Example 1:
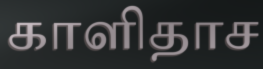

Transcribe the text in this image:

காளிதாச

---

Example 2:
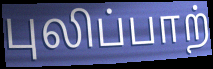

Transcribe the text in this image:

புலிப்பாற்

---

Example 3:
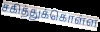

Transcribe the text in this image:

சகித்துக்கொள்ள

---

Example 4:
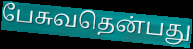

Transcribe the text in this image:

பேசுவதென்பது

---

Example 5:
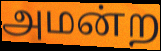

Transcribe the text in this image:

அமன்ற